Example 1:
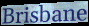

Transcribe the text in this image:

Brisbane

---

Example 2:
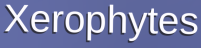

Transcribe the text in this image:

Xerophytes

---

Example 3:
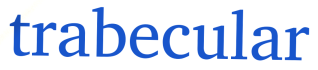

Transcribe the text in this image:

trabecular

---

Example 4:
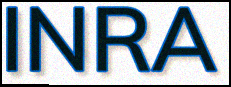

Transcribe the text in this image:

INRA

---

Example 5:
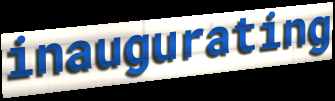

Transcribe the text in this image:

inaugurating